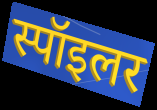
स्पॉइलर